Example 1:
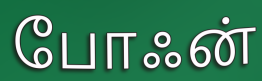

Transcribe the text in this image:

போஃன்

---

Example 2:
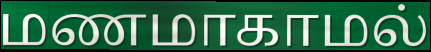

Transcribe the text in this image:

மணமாகாமல்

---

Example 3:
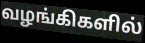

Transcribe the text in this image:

வழங்கிகளில்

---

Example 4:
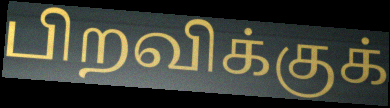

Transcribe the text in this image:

பிறவிக்குக்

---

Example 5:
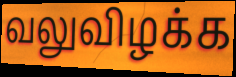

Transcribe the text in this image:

வலுவிழக்க